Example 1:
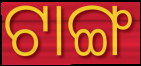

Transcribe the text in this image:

ଟାଙ୍ଗ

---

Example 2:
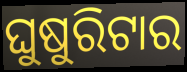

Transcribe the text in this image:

ଘୁଷୁରିଟାର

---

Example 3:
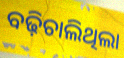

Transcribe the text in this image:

ବଢ଼ିଚାଲିଥିଲା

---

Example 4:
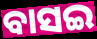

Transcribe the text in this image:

ବାସଇ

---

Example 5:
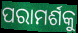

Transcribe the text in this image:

ପରାମର୍ଶକୁ